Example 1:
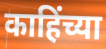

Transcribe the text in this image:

काहिंच्या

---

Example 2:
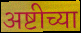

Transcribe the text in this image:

अष्टीच्या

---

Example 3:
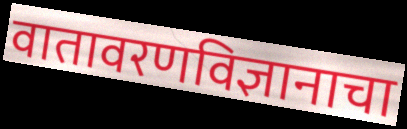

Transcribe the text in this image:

वातावरणविज्ञानाचा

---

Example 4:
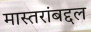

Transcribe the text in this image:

मास्तरांबद्दल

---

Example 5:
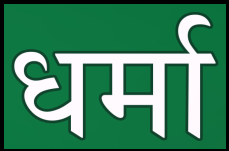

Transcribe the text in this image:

धर्मा